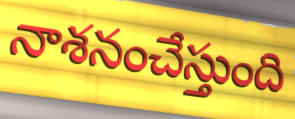
నాశనంచేస్తుంది